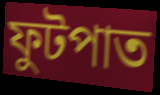
ফুটপাত